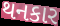
થનકાર